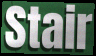
Stair